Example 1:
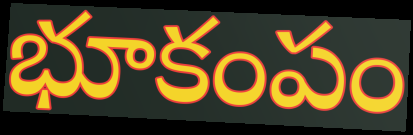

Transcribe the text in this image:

భూకంపం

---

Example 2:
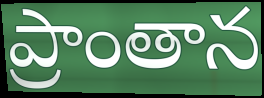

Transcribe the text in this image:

ప్రాంతాన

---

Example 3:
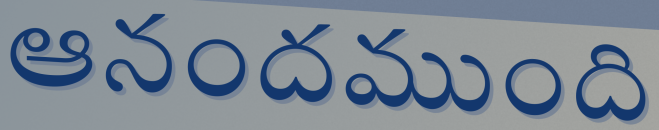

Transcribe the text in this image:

ఆనందముంది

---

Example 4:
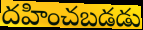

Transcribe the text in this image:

దహించబడడు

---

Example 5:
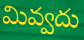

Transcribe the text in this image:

మివ్వదు